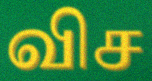
விச